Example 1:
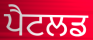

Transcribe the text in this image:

ਪੈਟਲਡ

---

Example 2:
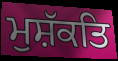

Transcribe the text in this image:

ਮੁਸ਼ੱਕਤਿ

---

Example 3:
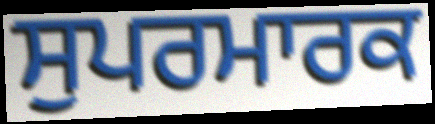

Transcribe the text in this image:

ਸੁਪਰਮਾਰਕ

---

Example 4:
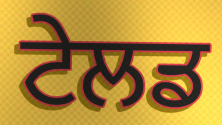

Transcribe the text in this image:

ਟੇਲਡ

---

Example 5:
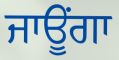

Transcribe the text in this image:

ਜਾਊਂਗਾ